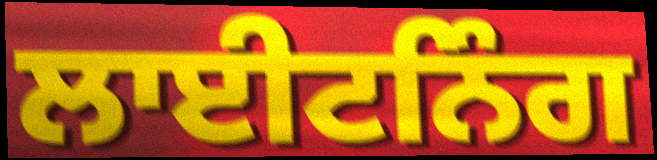
ਲਾਈਟਨਿੰਗ